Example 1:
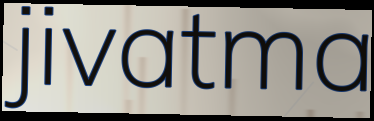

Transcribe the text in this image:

jivatma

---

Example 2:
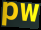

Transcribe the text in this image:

pw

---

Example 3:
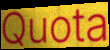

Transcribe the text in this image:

Quota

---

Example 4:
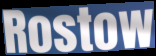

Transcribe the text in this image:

Rostow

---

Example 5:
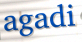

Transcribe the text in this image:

agadi